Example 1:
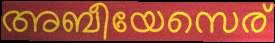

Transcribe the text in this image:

അബീയേസെര്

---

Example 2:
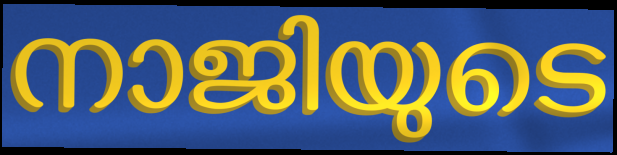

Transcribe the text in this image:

നാജിയുടെ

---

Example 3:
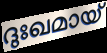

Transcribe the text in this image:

ദുഃഖമായ്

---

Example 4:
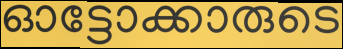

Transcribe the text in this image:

ഓട്ടോക്കാരുടെ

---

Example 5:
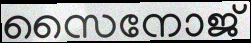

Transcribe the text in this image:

സൈനോജ്